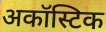
अकॉस्टिक